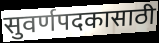
सुवर्णपदकासाठी